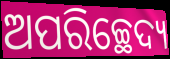
ଅପରିଚ୍ଛେଦ୍ୟ